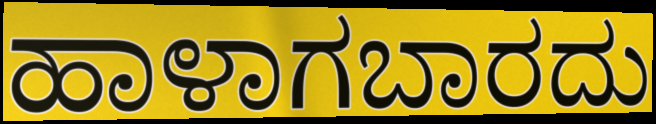
ಹಾಳಾಗಬಾರದು